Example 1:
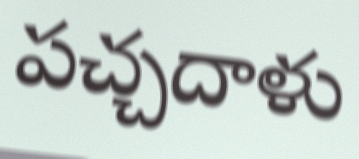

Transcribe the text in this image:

పచ్చదాళు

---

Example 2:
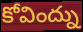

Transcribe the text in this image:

కోవింద్ను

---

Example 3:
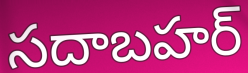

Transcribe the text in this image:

సదాబహర్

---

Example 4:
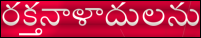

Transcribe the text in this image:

రక్తనాళాదులను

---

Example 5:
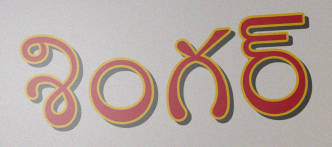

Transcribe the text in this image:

శింగర్